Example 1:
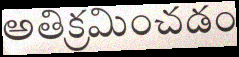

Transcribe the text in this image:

అతిక్రమించడం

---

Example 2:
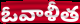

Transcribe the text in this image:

ఓవాళీత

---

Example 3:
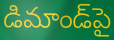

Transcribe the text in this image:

డిమాండ్‌పై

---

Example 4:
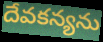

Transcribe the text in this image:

దేవకన్యను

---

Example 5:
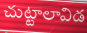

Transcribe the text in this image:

చుట్టాలావిడ